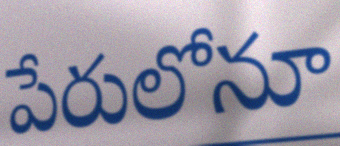
పేరులోనూ